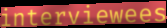
interviewees